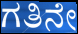
ಗತಿನೇ